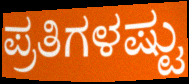
ಪ್ರತಿಗಳಷ್ಟು